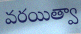
వరయిత్వా